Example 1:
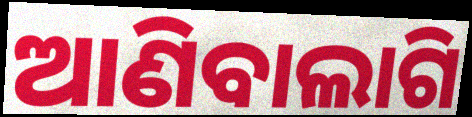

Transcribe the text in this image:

ଆଣିବାଲାଗି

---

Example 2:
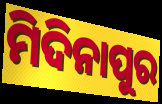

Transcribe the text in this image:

ମିଦିନାପୁର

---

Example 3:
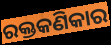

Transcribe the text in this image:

ରକ୍ତକଣିକାର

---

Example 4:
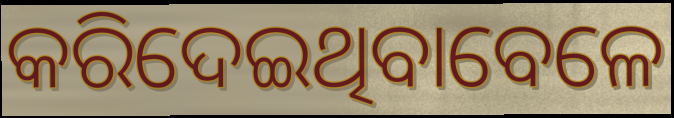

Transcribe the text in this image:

କରିଦେଇଥିବାବେଳେ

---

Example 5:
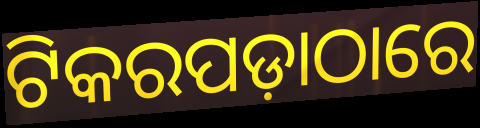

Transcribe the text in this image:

ଟିକରପଡ଼ାଠାରେ